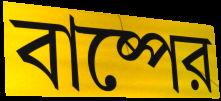
বাষ্পের